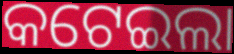
କଟେଇଲା